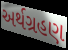
અર્થગ્રહણ